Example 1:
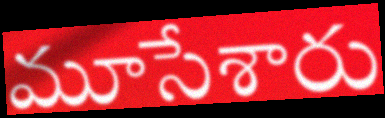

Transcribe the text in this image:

మూసేశారు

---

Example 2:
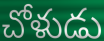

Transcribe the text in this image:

చోళుడు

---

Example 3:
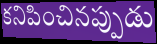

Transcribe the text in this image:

కనిపించినప్పుడు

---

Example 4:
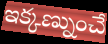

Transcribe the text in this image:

ఇక్కణ్నుంచే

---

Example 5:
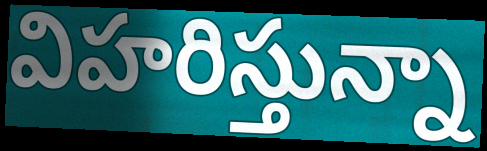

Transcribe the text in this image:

విహరిస్తున్నా